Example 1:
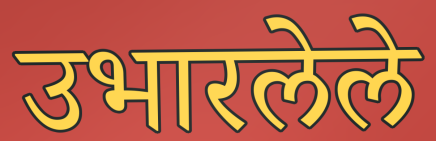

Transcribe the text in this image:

उभारलेले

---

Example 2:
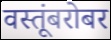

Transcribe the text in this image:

वस्तूंबरोबर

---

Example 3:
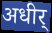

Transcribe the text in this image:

अधीर्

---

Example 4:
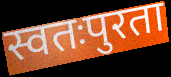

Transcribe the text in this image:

स्वतःपुरता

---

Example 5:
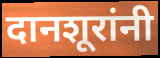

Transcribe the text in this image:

दानशूरांनी